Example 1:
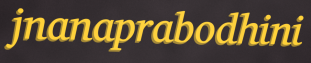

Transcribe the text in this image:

jnanaprabodhini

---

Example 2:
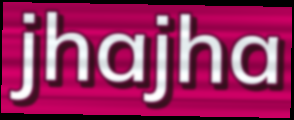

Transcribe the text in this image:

jhajha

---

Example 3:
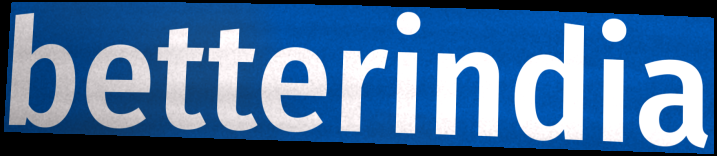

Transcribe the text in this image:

betterindia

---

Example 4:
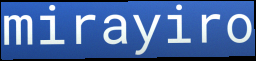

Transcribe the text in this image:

mirayiro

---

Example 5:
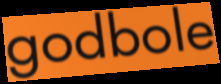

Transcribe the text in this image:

godbole